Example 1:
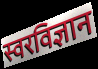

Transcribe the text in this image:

स्वरविज्ञान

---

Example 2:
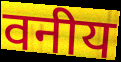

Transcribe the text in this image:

वनीय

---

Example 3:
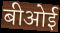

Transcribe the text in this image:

बीओई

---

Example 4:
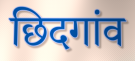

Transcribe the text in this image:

छिदगांव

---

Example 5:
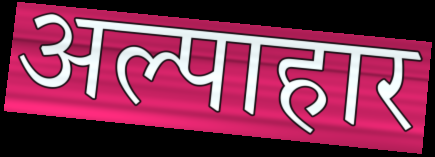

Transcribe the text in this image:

अल्पाहार